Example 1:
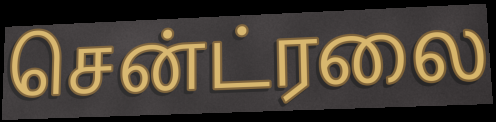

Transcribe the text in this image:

சென்ட்ரலை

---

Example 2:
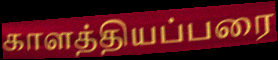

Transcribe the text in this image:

காளத்தியப்பரை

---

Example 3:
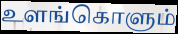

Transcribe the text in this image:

உளங்கொளும்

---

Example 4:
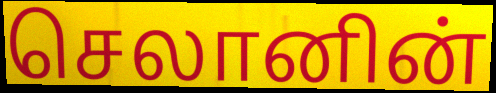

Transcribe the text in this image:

செலானின்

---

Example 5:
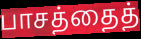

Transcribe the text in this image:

பாசத்தைத்